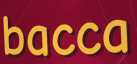
bacca